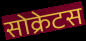
सोक्रेटस